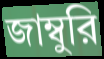
জাম্বুরি